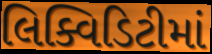
લિક્વિડિટીમાં